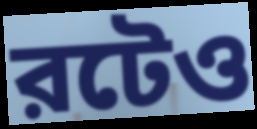
রটেও